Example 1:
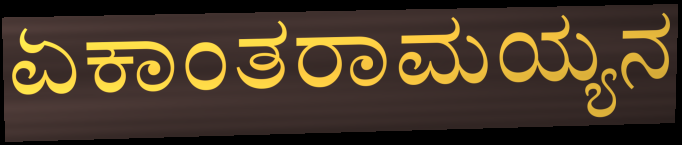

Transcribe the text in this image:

ಏಕಾಂತರಾಮಯ್ಯನ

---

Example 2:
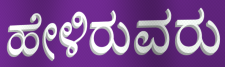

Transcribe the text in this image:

ಹೇಳಿರುವರು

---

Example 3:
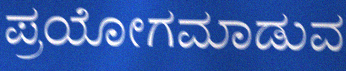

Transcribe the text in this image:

ಪ್ರಯೋಗಮಾಡುವ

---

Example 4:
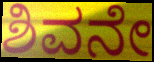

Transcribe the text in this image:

ಶಿವನೇ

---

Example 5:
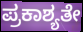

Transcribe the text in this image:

ಪ್ರಕಾಶ್ಯತೇ